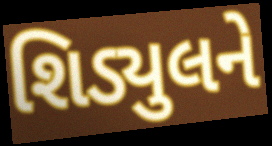
શિડ્યુલને